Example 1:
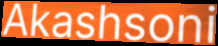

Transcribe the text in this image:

Akashsoni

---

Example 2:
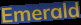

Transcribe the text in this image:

Emerald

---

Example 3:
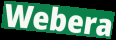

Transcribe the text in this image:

Webera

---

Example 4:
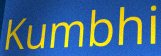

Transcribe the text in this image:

Kumbhi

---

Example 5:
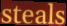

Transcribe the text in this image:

steals